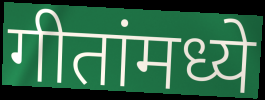
गीतांमध्ये